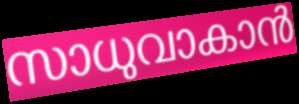
സാധുവാകാൻ